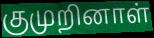
குமுறினாள்